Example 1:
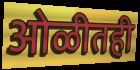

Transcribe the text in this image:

ओळीतही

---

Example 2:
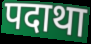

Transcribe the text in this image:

पदाथा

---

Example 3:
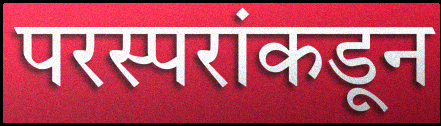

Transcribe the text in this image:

परस्परांकडून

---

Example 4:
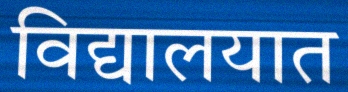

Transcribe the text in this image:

विद्यालयात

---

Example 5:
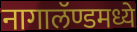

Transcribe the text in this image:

नागालॅण्डमध्ये